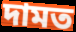
দামত